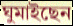
ঘুমাইছেন